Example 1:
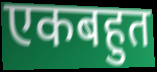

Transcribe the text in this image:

एकबहुत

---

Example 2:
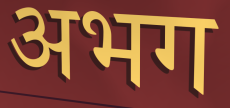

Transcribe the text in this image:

अभग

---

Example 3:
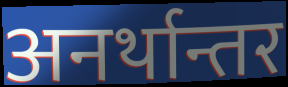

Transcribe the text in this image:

अनर्थान्तर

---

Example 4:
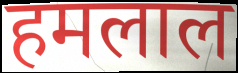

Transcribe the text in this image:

हमलाल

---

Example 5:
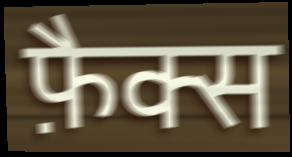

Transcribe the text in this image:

फ़ैक्स